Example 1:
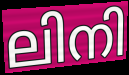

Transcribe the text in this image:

ലിനി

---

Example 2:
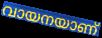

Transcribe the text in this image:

വായനയാണ്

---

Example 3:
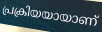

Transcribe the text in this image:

പ്രക്രിയയായാണ്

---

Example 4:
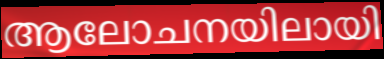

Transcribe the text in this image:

ആലോചനയിലായി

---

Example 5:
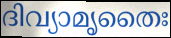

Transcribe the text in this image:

ദിവ്യാമൃതൈഃ